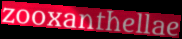
zooxanthellae